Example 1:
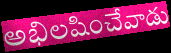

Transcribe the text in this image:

అభిలషించేవాడు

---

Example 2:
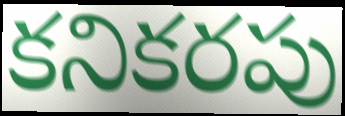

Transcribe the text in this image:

కనికరపు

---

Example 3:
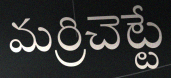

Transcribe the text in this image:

మర్రిచెట్టే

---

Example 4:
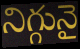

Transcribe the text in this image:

నిగ్గునై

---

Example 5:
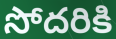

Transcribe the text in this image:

సోదరికి